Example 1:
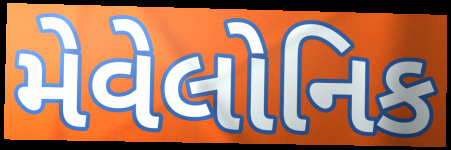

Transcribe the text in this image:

મેવેલોનિક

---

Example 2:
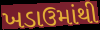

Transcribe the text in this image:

ખડાઉમાંથી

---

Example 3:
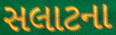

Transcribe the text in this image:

સલાટના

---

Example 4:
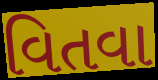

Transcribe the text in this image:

વિતવા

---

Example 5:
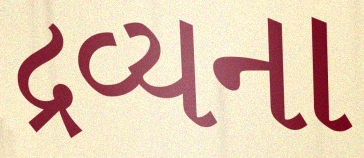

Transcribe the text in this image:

દ્રવ્યના